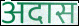
अदास